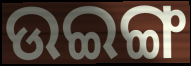
ଉଇଙ୍ଗ